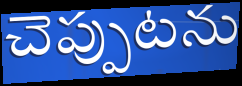
చెప్పుటను